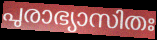
പുരാഭ്യാസിതഃ